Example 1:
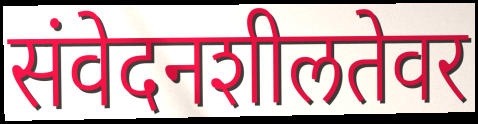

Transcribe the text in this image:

संवेदनशीलतेवर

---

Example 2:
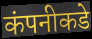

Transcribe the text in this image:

कंपनीकडे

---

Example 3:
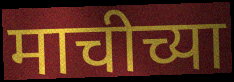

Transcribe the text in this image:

माचीच्या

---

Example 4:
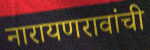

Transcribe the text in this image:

नारायणरावांची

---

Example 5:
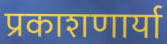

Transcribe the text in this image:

प्रकाशणार्या